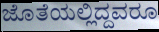
ಜೊತೆಯಲ್ಲಿದ್ದವರೂ